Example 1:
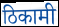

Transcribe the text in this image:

ठिकामी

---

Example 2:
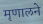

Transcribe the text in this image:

मृणालने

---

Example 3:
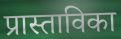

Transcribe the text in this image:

प्रास्ताविका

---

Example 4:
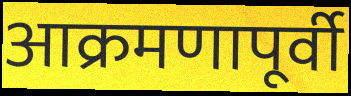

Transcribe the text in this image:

आक्रमणापूर्वी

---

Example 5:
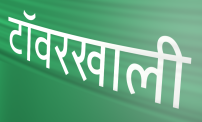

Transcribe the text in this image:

टॉवरखाली